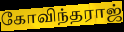
கோவிந்தராஜ்